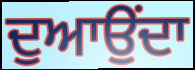
ਦੁਆਉਂਦਾ